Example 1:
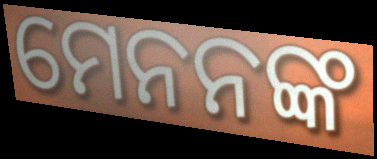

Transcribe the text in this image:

ମେନନଙ୍କ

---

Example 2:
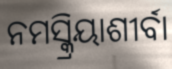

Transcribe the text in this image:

ନମସ୍କ୍ରିୟାଶୀର୍ବା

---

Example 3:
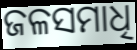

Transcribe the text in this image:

ଜଳସମାଧି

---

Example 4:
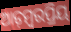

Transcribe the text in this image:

ଆଡ଼ମ୍ବରପ୍ରିୟ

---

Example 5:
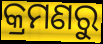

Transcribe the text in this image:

କ୍ରମଣରୁ